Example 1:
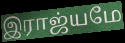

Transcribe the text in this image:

இராஜ்யமே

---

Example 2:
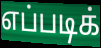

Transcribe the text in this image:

எப்படிக்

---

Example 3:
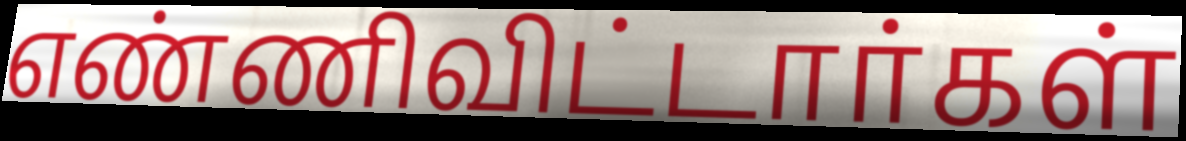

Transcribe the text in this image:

எண்ணிவிட்டார்கள்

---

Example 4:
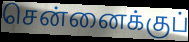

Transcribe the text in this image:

சென்னைக்குப்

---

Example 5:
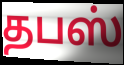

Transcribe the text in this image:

தபஸ்